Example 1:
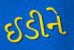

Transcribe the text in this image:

ઈડીને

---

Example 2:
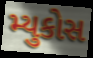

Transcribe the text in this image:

મ્યુકોસ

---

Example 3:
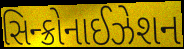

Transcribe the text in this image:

સિન્ક્રોનાઈઝેશન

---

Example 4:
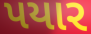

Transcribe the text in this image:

પયાર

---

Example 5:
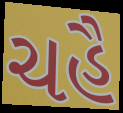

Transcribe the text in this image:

ચહૈ